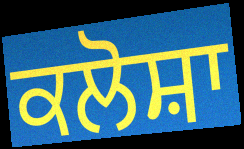
ਕਲੋਸ਼ਾ